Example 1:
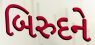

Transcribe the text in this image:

બિરુદને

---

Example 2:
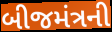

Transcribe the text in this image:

બીજમંત્રની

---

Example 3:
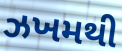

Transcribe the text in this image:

ઝખમથી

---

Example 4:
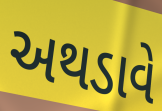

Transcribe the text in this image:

અથડાવે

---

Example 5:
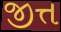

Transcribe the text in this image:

જીત્ત